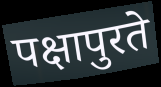
पक्षापुरते